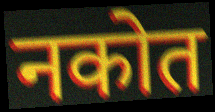
नकोत